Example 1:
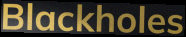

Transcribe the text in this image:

Blackholes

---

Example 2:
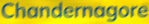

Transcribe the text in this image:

Chandernagore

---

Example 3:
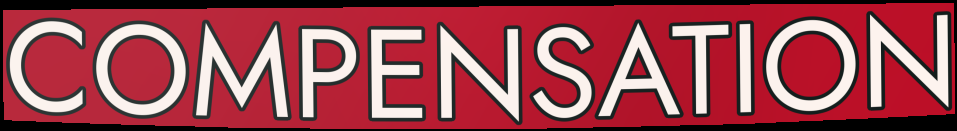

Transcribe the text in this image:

COMPENSATION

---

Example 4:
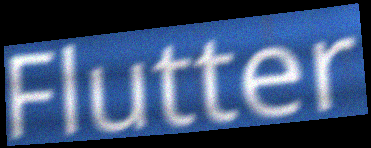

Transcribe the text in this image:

Flutter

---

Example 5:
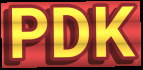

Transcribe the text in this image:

PDK